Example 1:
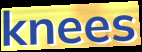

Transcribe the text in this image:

knees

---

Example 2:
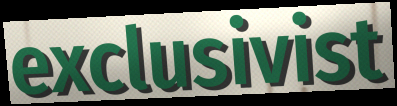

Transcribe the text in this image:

exclusivist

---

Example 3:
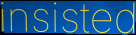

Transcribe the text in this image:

insisted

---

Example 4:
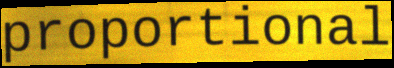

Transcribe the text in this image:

proportional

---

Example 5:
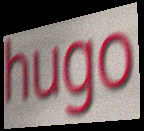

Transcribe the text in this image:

hugo